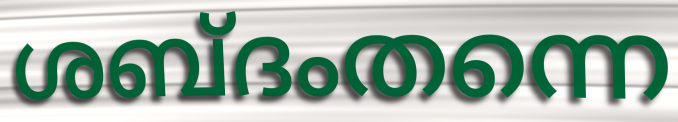
ശബ്ദംതന്നെ